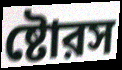
ষ্টোরস